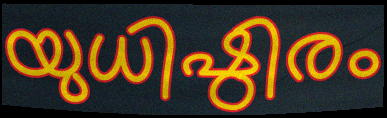
യുധിഷ്ഠിരം